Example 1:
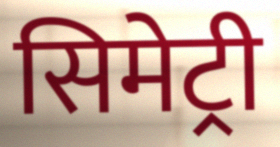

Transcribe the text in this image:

सिमेट्री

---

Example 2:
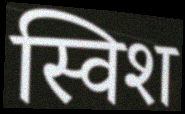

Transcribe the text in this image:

स्विश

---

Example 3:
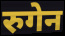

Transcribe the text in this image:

रुगेन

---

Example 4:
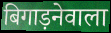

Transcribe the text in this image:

बिगाड़नेवाला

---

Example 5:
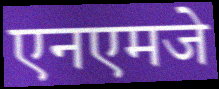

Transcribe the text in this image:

एनएमजे